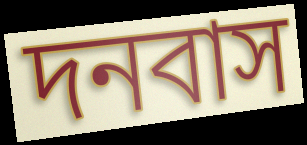
দনবাস